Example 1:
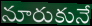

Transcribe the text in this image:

నూరుకునే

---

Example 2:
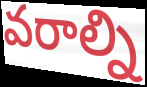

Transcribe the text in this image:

వరాల్ని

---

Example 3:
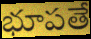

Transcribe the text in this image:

భూపతే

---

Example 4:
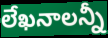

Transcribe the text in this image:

లేఖనాలన్నీ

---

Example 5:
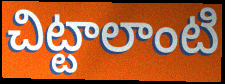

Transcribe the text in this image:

చిట్టాలాంటి